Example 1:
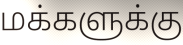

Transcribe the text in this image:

மக்களுக்கு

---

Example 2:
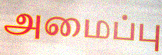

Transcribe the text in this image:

அமைப்பு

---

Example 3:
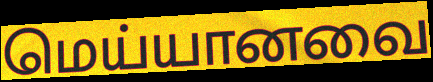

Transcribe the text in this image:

மெய்யானவை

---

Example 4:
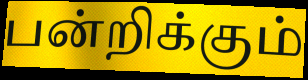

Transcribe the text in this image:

பன்றிக்கும்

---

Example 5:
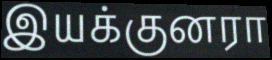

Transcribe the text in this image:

இயக்குனரா